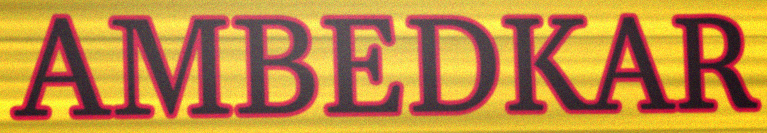
AMBEDKAR